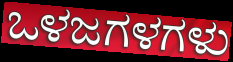
ಒಳಜಗಳಗಳು